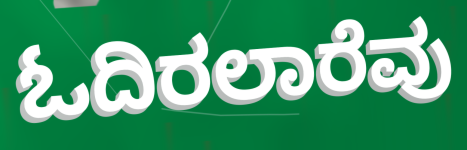
ಓದಿರಲಾರೆವು